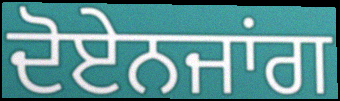
ਦੋਏਨਜਾਂਗ